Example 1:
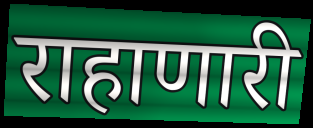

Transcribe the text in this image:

राहाणारी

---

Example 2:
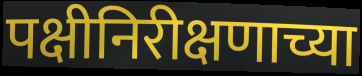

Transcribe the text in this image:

पक्षीनिरीक्षणाच्या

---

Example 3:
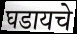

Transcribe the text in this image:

घडायचे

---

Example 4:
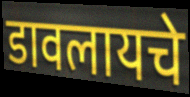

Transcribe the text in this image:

डावलायचे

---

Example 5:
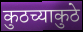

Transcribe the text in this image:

कुठच्याकुठे